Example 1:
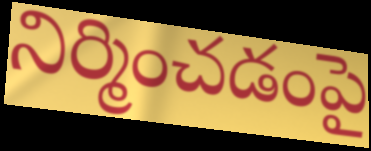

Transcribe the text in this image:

నిర్మించడంపై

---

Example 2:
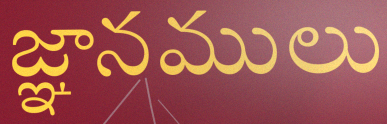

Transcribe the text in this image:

జ్ఞానములు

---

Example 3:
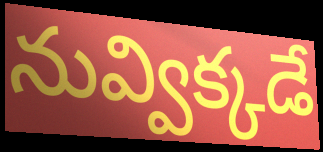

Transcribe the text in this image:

నువ్విక్కడే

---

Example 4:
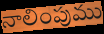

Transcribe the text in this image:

నాలింపుము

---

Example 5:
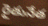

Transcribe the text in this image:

రైతునేత